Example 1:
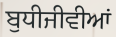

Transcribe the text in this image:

ਬੁਧੀਜੀਵੀਆਂ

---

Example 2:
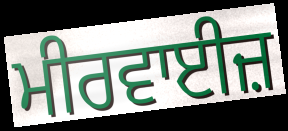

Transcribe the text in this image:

ਮੀਰਵਾਈਜ਼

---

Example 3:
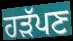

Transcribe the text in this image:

ਹੜੱਪਣ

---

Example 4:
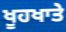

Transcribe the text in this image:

ਖੂਹਖਾਤੇ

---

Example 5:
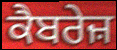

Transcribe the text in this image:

ਕੈਬਰੇਜ਼